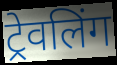
ट्रेवलिंग